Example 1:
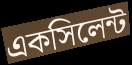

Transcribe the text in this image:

একসিলেন্ট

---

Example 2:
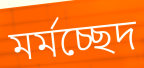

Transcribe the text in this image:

মর্মচ্ছেদ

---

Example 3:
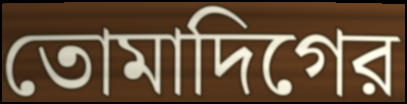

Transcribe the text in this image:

তোমাদিগের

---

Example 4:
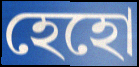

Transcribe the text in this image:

হেহো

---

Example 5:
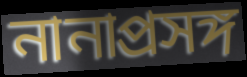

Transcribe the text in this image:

নানাপ্রসঙ্গ